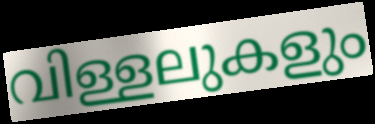
വിള്ളലുകളും